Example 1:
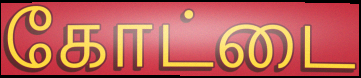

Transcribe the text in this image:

கோட்டை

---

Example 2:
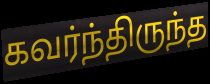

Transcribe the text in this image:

கவர்ந்திருந்த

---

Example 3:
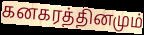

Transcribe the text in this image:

கனகரத்தினமும்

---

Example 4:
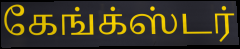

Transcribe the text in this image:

கேங்க்ஸ்டர்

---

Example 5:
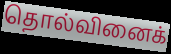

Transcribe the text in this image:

தொல்வினைக்